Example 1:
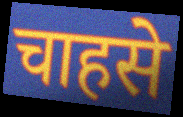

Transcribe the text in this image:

चाहसे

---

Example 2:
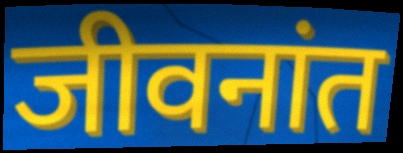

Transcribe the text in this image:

जीवनांत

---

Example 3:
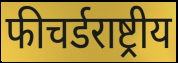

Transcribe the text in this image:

फीचर्डराष्ट्रीय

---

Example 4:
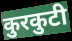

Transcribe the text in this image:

कुरकुटी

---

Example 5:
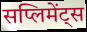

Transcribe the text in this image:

सप्लिमेंट्स